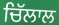
ਚਿੱਲਾਲ